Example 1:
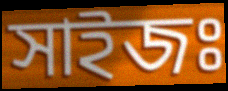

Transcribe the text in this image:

সাইজঃ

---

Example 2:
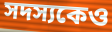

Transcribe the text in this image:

সদস্যকেও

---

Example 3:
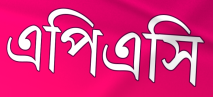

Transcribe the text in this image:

এপিএসি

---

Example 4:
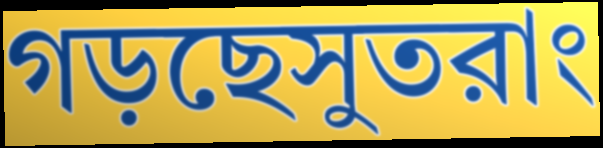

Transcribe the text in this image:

গড়ছেসুতরাং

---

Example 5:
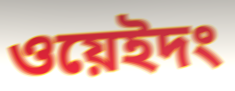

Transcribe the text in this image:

ওয়েইদং